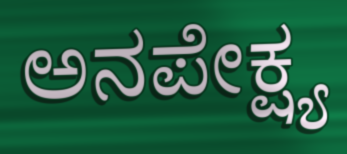
ಅನಪೇಕ್ಷ್ಯ